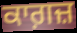
ਕਾਗ਼ਜ਼